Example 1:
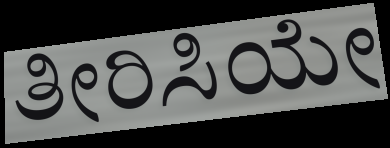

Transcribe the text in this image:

ತೀರಿಸಿಯೇ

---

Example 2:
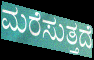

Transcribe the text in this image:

ಮರೆಸುತ್ತದೆ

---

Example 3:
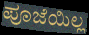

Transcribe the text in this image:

ಪೂಜೆಯಿಲ್ಲ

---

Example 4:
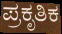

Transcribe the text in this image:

ಪ್ರಕೃತಿಕ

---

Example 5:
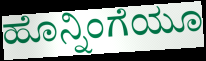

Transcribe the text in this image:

ಹೊನ್ನಿಂಗೆಯೂ